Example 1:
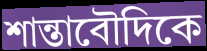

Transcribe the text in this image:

শান্তাবৌদিকে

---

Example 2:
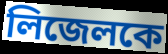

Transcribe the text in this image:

লিজেলকে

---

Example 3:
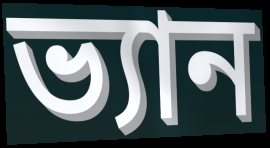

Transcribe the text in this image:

ভ্যান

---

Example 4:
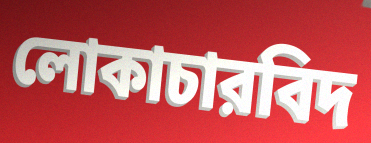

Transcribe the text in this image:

লোকাচারবিদ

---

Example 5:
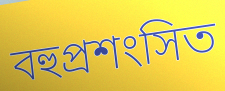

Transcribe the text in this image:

বহুপ্রশংসিত